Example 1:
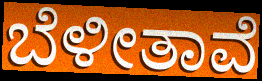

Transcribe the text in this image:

ಬೆಳೀತಾವೆ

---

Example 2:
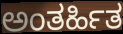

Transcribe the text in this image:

ಅಂತರ್ಹಿತ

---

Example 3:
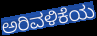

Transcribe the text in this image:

ಅರಿವಳಿಕೆಯ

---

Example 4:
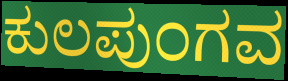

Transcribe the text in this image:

ಕುಲಪುಂಗವ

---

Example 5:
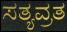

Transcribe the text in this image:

ಸತ್ಯವ್ರತ